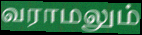
வராமலும்